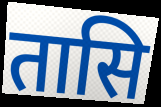
तासि